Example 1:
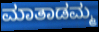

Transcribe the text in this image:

ಮಾತಾಡಮ್ಮ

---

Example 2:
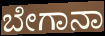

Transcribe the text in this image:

ಬೇಗಾನಾ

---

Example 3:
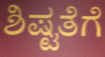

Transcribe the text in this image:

ಶಿಷ್ಟತೆಗೆ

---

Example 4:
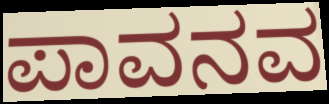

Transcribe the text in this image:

ಪಾವನವ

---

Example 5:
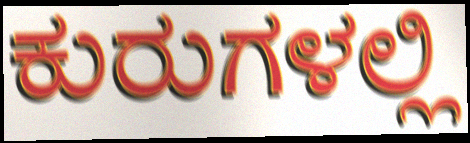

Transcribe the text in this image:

ಕುರುಗಳಲ್ಲಿ